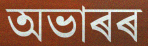
অভাৰৰ